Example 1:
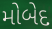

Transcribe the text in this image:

મોબેદ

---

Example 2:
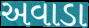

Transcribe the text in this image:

અવાડા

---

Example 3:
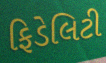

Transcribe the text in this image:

ફિડેલિટી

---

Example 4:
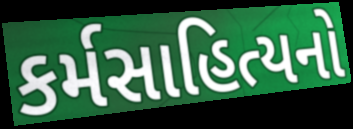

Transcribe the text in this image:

કર્મસાહિત્યનો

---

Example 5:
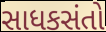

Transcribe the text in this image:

સાધકસંતો